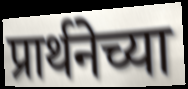
प्रार्थनेच्या